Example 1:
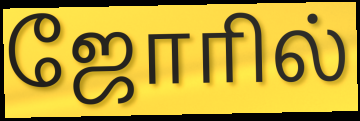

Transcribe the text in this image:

ஜோரில்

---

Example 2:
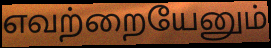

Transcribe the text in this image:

எவற்றையேனும்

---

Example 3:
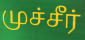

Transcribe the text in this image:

முச்சீர்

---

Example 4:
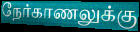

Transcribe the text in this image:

நேர்காணலுக்கு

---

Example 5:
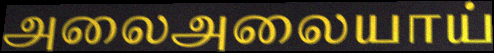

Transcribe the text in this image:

அலைஅலையாய்